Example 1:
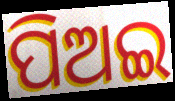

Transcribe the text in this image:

ପିଅଇ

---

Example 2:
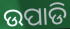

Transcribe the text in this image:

ଉପାଡି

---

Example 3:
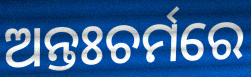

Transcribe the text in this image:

ଅନ୍ତଃଚର୍ମରେ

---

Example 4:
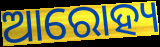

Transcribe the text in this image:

ଆରୋହ୍ୟ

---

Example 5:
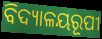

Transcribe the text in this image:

ବିଦ୍ୟାଳୟରୂପୀ